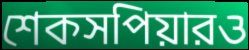
শেকসপিয়ারও